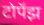
टोपॅझ